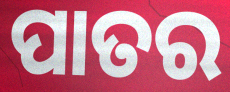
ପାତର